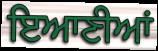
ਇਆਣੀਆਂ